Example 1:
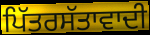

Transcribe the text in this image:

ਪਿੱਤਰਸੱਤਾਵਾਦੀ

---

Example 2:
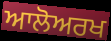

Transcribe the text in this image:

ਆਲੋਅਰਖ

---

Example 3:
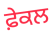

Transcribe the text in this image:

ਫ਼ੇਕਲ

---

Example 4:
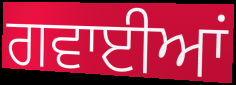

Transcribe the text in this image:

ਗਵਾਈਆਂ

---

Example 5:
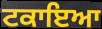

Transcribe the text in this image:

ਟਕਾਇਆ